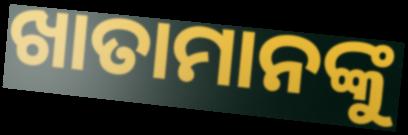
ଖାତାମାନଙ୍କୁ